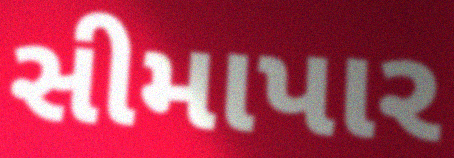
સીમાપાર